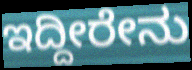
ಇದ್ದೀರೇನು